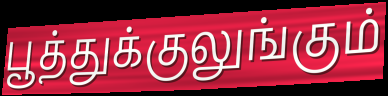
பூத்துக்குலுங்கும்